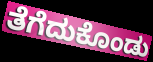
ತೆಗೆದುಕೊಂಡು